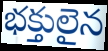
భక్తులైన